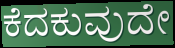
ಕೆದಕುವುದೇ